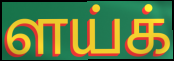
ளய்க்